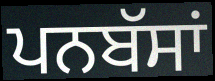
ਪਨਬੱਸਾਂ